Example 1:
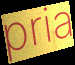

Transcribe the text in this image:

pria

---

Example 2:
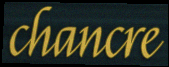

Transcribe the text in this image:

chancre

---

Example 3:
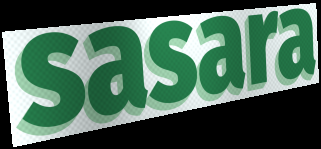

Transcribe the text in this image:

sasara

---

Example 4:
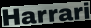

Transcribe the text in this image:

Harrari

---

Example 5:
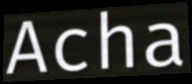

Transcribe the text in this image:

Acha